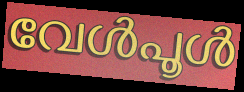
വേൾപൂൾ